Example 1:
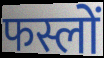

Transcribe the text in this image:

फस्लों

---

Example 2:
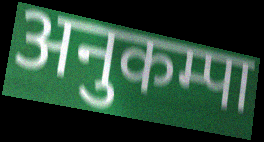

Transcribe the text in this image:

अनुकम्‍पा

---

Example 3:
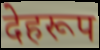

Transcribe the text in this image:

देहरूप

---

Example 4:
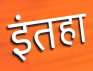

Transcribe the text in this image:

इंतहा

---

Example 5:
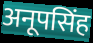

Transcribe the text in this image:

अनूपसिंह